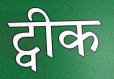
ट्वीक